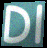
Dl